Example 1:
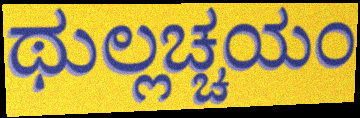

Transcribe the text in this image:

ಥುಲ್ಲಚ್ಚಯಂ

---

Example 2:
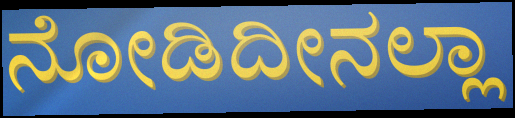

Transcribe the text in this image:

ನೋಡಿದೀನಲ್ಲಾ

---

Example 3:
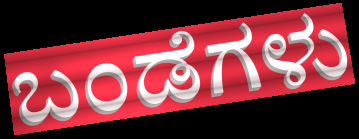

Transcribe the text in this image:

ಬಂಡೆಗಳು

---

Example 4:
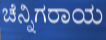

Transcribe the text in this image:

ಚೆನ್ನಿಗರಾಯ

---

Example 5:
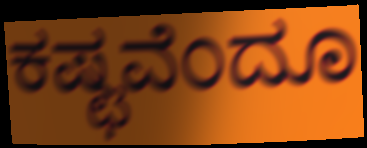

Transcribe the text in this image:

ಕಷ್ಟವೆಂದೂ